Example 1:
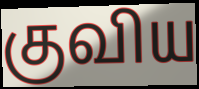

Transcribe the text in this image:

குவிய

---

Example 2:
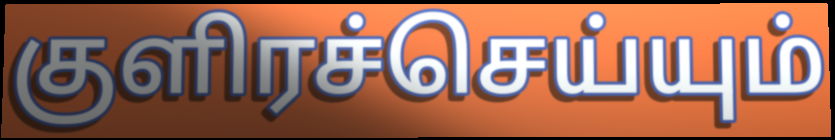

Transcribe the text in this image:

குளிரச்செய்யும்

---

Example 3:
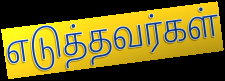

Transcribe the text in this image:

எடுத்தவர்கள்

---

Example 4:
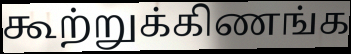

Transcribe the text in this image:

கூற்றுக்கிணங்க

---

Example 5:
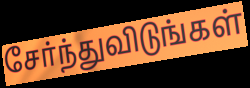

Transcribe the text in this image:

சேர்ந்துவிடுங்கள்